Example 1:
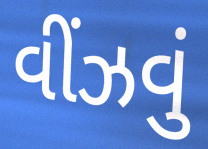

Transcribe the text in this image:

વીંઝવું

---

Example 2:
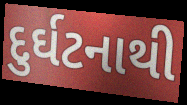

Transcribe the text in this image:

દુર્ઘટનાથી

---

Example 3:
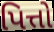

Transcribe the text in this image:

પિત્તો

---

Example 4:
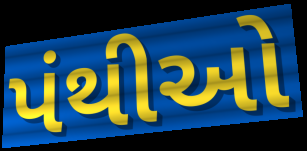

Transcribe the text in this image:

પંથીઓ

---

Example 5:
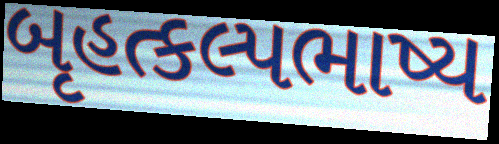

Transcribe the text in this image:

બૃહત્કલ્પભાષ્ય